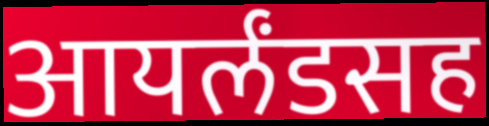
आयर्लंडसह